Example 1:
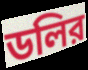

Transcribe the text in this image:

ডলির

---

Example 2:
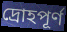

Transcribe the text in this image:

দ্রোহপূর্ণ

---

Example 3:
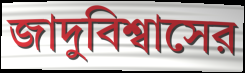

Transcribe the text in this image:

জাদুবিশ্বাসের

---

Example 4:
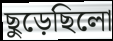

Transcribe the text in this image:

ছুড়েছিলো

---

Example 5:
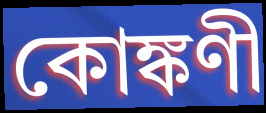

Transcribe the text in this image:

কোঙ্কণী